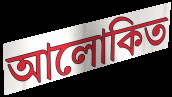
আলোকিত